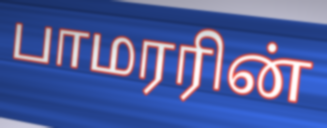
பாமரரின்